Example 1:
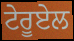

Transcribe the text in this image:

ਟੇਰੂਏਲ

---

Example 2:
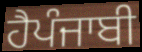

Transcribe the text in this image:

ਹੈਪੰਜਾਬੀ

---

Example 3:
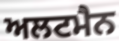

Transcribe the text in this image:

ਅਲਟਮੈਨ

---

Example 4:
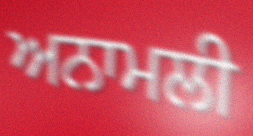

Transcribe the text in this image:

ਅਨਾਮਲੀ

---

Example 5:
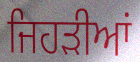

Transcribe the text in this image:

ਜਿਹੜੀਆਂ